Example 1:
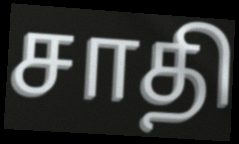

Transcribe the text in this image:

சாதி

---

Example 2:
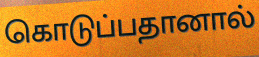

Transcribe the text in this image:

கொடுப்பதானால்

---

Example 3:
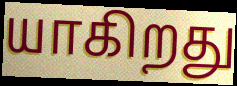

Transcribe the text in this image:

யாகிறது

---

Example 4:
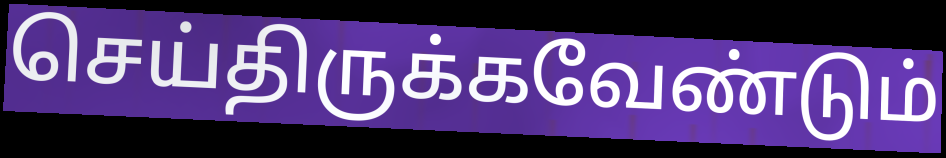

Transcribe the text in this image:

செய்திருக்கவேண்டும்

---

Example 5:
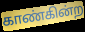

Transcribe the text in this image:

காண்கின்ற